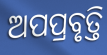
ଅପପ୍ରବୃତ୍ତି